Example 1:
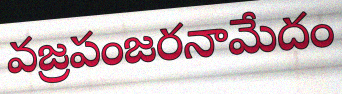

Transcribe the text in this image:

వజ్రపంజరనామేదం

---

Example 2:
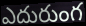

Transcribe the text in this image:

ఎదురుంగ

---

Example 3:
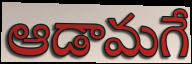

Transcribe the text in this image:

ఆడామగే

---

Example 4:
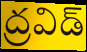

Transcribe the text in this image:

ద్రవిడ్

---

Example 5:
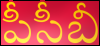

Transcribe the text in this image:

పీసీబీ